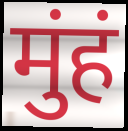
मुंहं